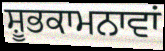
ਸ਼ੂਭਕਾਮਨਾਵਾਂ